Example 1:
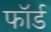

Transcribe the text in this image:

फॉर्ड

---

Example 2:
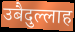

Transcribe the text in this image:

उबैदुल्लाह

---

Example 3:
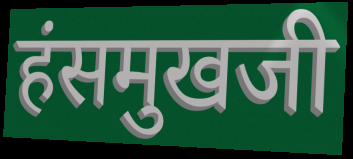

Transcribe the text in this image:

हंसमुखजी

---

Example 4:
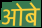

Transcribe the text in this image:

ओबे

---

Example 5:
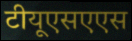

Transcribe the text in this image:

टीयूएसएएस